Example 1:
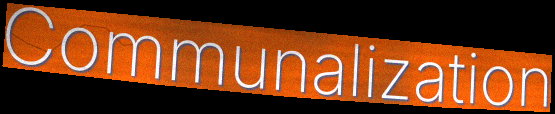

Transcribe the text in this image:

Communalization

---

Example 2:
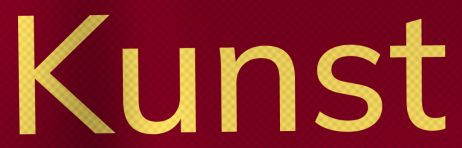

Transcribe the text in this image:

Kunst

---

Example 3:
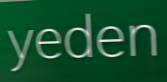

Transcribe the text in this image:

yeden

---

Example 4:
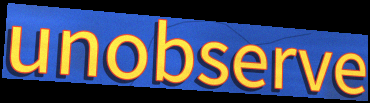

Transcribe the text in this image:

unobserve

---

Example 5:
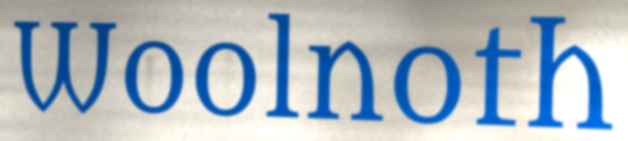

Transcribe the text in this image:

Woolnoth